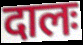
दालः